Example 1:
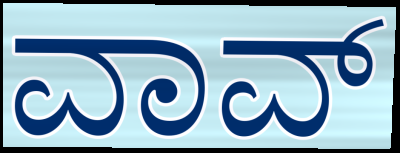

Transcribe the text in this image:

ವಾವ್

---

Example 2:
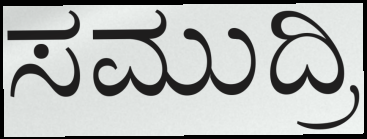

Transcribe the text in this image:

ಸಮುದ್ರಿ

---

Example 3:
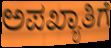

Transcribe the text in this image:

ಅಪಖ್ಯಾತಿಗೆ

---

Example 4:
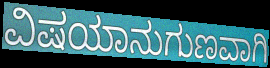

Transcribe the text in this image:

ವಿಷಯಾನುಗುಣವಾಗಿ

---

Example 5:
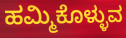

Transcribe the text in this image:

ಹಮ್ಮಿಕೊಳ್ಳುವ